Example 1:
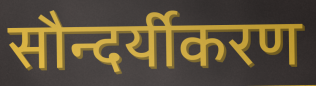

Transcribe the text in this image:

सौन्दर्यीकरण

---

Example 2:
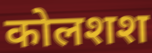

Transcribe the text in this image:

कोलशश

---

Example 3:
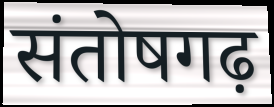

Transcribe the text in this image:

संतोषगढ़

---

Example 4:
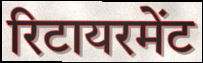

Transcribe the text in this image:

रिटायरमेंट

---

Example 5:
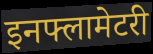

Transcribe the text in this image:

इनफ्लामेटरी